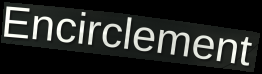
Encirclement